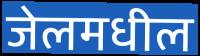
जेलमधील